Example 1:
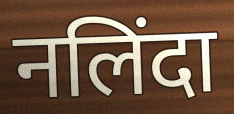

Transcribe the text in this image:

नलिंदा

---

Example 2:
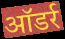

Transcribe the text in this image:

ऑडर्र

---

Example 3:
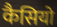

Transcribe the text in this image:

कैसियो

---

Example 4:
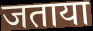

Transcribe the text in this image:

जताया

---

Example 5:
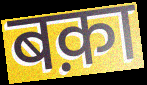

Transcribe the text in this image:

बक़ा